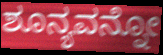
ಶೂನ್ಯವನ್ನೋ